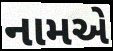
નામએ